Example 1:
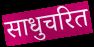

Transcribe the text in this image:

साधुचरित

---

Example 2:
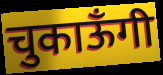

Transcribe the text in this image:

चुकाऊँगी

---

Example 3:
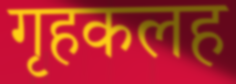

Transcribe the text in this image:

गृहकलह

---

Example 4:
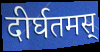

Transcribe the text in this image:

दीर्घतमस्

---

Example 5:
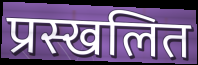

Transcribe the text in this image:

प्रस्खलित